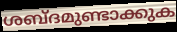
ശബ്ദമുണ്ടാക്കുക